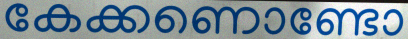
കേക്കണൊണ്ടോ